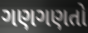
ગણગણતો